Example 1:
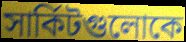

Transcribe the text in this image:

সার্কিটগুলোকে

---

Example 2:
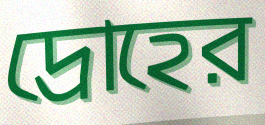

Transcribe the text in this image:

দ্রোহের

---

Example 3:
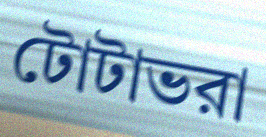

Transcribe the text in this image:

টোটাভরা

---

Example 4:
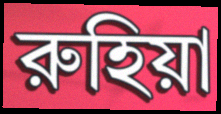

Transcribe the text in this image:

রুহিয়া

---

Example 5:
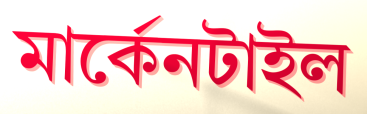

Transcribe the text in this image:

মার্কেনটাইল